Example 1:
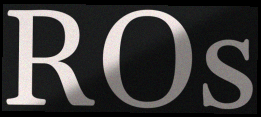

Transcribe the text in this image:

ROs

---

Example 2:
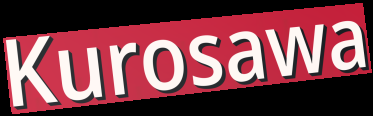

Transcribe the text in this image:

Kurosawa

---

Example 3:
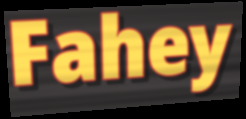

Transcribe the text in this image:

Fahey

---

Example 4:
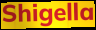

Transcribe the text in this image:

Shigella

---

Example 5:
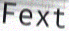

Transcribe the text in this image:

Fext